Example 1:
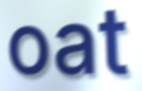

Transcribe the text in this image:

oat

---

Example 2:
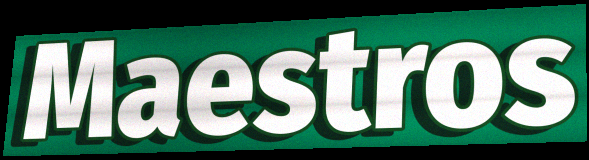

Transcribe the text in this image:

Maestros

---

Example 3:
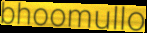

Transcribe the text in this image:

bhoomullo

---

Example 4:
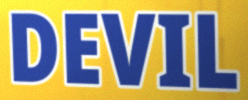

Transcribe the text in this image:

DEVIL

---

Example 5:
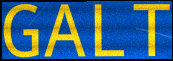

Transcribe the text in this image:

GALT